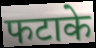
फटाके